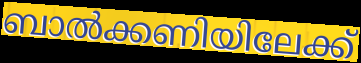
ബാൽക്കണിയിലേക്ക്